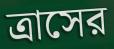
ত্রাসের